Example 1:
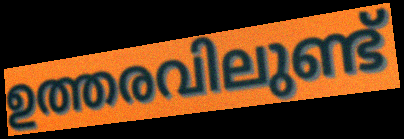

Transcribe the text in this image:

ഉത്തരവിലുണ്ട്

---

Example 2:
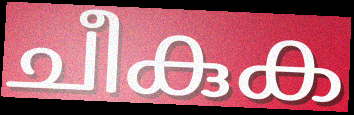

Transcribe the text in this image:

ചീകുക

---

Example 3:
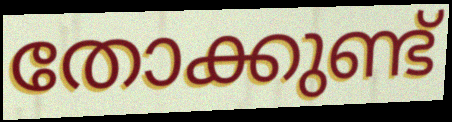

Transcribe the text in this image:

തോക്കുണ്ട്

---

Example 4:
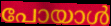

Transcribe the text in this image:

പോയാൾ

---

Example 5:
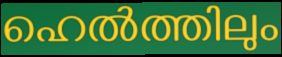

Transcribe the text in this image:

ഹെൽത്തിലും